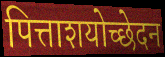
पित्ताशयोच्छेदन